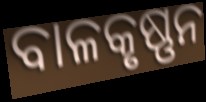
ବାଳକୃଷ୍ଣନ